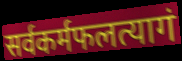
सर्वकर्मफलत्यागं